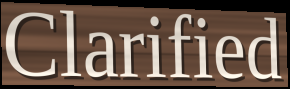
Clarified